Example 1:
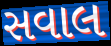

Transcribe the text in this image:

સવાલ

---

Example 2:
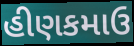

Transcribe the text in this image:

હીણકમાઉ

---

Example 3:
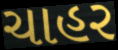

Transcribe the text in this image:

ચાહર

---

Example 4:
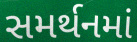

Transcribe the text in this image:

સમર્થનમાં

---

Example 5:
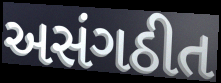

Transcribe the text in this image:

અસંગઠીત